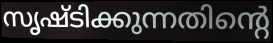
സൃഷ്ടിക്കുന്നതിന്റെ